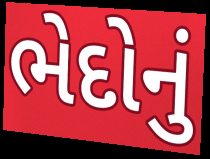
ભેદોનું